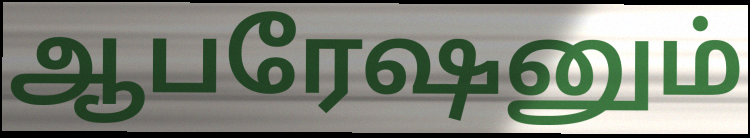
ஆபரேஷனும்